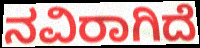
ನವಿರಾಗಿದೆ